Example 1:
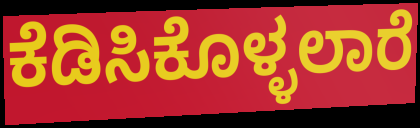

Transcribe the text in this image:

ಕೆಡಿಸಿಕೊಳ್ಳಲಾರೆ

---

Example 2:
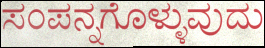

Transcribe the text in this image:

ಸಂಪನ್ನಗೊಳ್ಳುವುದು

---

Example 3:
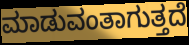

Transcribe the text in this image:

ಮಾಡುವಂತಾಗುತ್ತದೆ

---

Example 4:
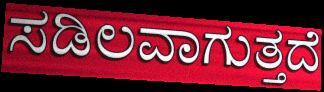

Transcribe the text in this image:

ಸಡಿಲವಾಗುತ್ತದೆ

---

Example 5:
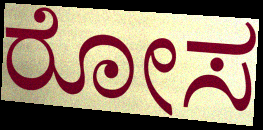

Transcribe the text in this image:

ರೋಸ